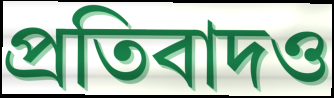
প্রতিবাদও